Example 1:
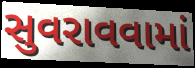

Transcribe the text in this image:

સુવરાવવામાં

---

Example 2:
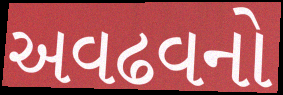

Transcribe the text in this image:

અવઢવનો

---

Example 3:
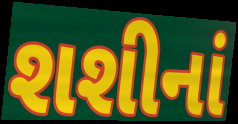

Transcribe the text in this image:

શશીનાં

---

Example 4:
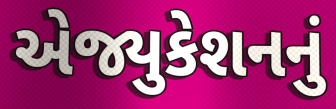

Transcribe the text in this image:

એજ્યુકેશનનું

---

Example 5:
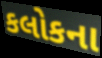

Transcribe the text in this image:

કલોકના